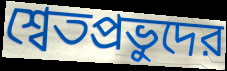
শ্বেতপ্রভুদের